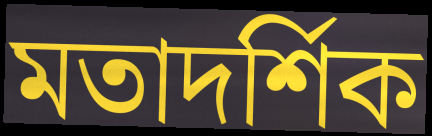
মতাদর্শিক